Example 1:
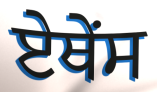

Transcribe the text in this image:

ਏਥੇਂਸ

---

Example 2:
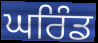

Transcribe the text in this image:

ਘਰਿੰਡ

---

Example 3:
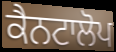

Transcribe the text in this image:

ਕੈਨਟਾਲੋਪ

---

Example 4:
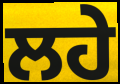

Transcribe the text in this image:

ਲਹੇ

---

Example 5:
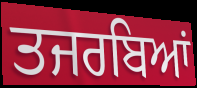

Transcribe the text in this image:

ਤਜਰਬਿਆਂ